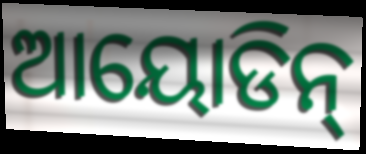
ଆୟୋଡିନ୍